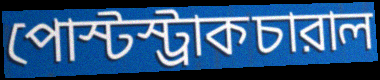
পোস্টস্ট্রাকচারাল